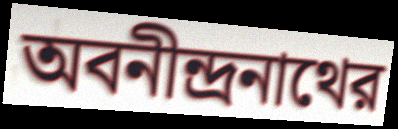
অবনীন্দ্রনাথের